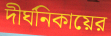
দীর্ঘনিকায়ের